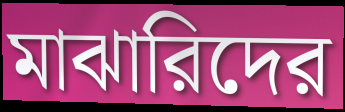
মাঝারিদের